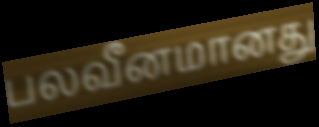
பலவீனமானது